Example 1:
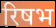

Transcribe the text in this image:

रिषभ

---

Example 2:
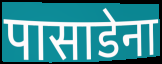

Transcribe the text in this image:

पासाडेना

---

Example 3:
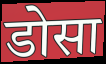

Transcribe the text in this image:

डोसा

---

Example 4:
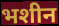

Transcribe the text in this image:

भशीन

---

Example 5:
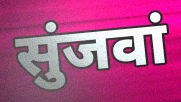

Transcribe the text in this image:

सुंजवां